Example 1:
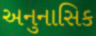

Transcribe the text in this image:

અનુનાસિક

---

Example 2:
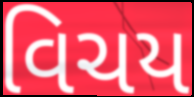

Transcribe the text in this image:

વિચય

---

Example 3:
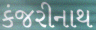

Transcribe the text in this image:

કંજરીનાથ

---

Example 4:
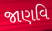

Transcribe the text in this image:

જાણવિ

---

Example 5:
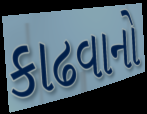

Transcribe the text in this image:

કાઢવાનો